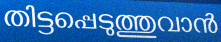
തിട്ടപ്പെടുത്തുവാൻ